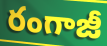
రంగాజీ